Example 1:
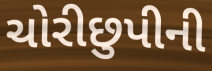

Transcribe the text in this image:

ચોરીછુપીની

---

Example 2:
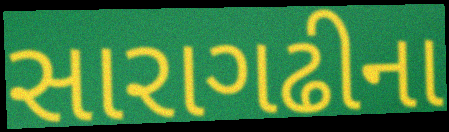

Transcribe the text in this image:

સારાગઢીના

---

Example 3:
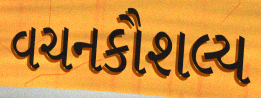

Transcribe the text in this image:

વચનકૌશલ્ય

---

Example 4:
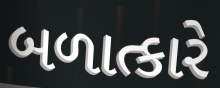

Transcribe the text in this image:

બળાત્કારે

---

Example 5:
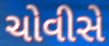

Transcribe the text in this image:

ચોવીસે